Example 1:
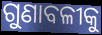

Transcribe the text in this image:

ଗୁଣାବଳୀକୁ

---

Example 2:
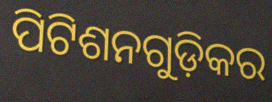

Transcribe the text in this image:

ପିଟିଶନଗୁଡ଼ିକର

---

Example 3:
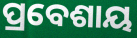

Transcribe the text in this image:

ପ୍ରବେଶାୟ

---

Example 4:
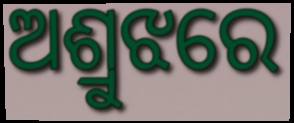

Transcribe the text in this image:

ଅଶ୍ରୁଝରେ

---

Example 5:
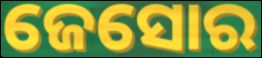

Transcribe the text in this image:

ଜେସୋର